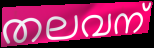
തലവന്